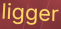
ligger